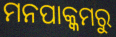
ମନପାକ୍କମରୁ